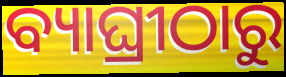
ବ୍ୟାଘ୍ରୀଠାରୁ